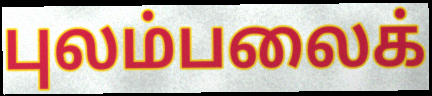
புலம்பலைக்